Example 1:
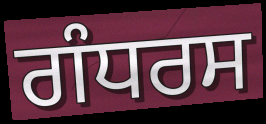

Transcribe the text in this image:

ਗੰਧਰਸ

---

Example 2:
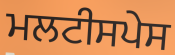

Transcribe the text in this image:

ਮਲਟੀਸਪੇਸ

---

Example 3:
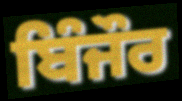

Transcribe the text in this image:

ਬਿੰਜੌਰ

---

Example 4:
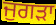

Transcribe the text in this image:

ਜੁਗੜਾ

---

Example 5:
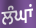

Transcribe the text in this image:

ਲੰਘਾਂ